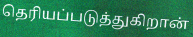
தெரியப்படுத்துகிறான்